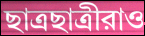
ছাত্রছাত্রীরাও